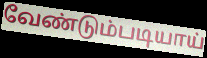
வேண்டும்படியாய்